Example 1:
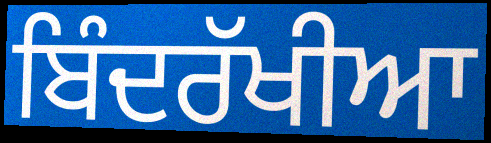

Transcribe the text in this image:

ਬਿੰਦਰੱਖੀਆ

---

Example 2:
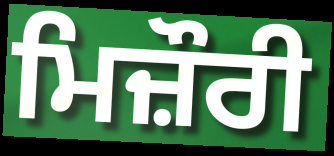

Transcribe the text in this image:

ਮਿਜ਼ੌਰੀ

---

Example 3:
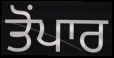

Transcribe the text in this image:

ਤੋਂਪਾਰ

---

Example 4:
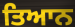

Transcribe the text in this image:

ਤਿਆਨ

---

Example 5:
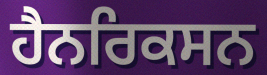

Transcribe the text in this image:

ਹੈਨਰਿਕਸਨ